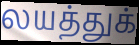
லயத்துக்